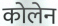
कोलेन